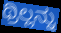
ಥ್ರಿಲ್ಲನ್ನು